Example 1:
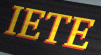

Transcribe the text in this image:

IETE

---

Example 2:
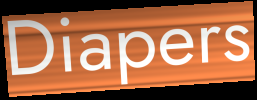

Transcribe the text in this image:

Diapers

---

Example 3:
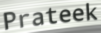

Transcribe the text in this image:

Prateek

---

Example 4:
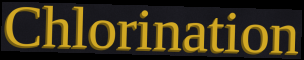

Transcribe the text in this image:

Chlorination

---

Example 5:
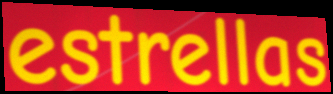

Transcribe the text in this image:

estrellas